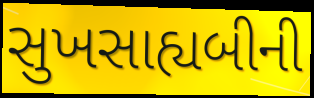
સુખસાહ્યબીની